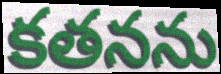
కతనను